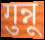
गुन्नू